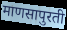
माणसापुरती